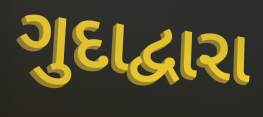
ગુદાદ્વારા